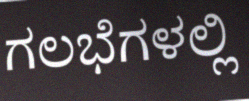
ಗಲಭೆಗಳಲ್ಲಿ